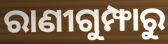
ରାଣୀଗୁମ୍ଫାରୁ